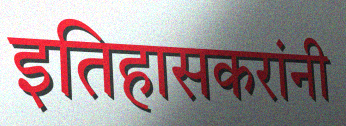
इतिहासकरांनी